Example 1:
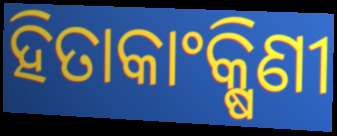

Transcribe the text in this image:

ହିତାକାଂକ୍ଷିଣୀ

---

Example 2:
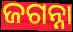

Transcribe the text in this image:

ଜଗନ୍ନା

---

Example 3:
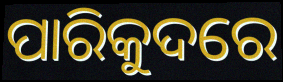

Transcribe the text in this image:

ପାରିକୁଦରେ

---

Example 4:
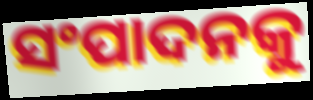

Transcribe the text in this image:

ସଂପାଦନକୁ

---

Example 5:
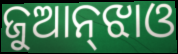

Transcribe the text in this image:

ଜୁଆନ୍‌ଝାଓ